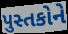
પુસ્તકોને